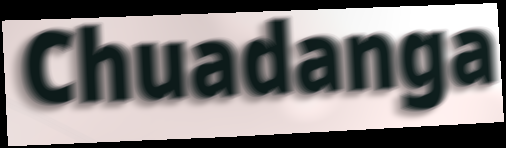
Chuadanga